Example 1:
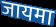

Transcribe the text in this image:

जायमा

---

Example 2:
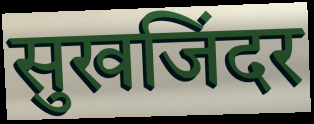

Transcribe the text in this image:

सुखजिंदर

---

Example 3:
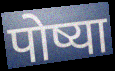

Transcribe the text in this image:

पोष्या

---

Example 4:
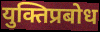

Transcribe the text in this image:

युक्तिप्रबोध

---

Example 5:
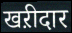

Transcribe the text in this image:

खऱीदार